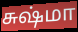
சுஷ்மா